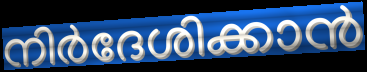
നിർദേശിക്കാൻ